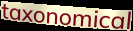
taxonomical